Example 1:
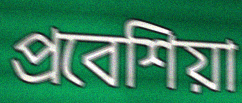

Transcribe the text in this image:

প্রবেশিয়া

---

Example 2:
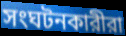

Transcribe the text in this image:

সংঘটনকারীরা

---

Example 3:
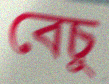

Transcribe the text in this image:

বেচু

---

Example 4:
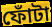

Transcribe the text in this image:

ফোঁটা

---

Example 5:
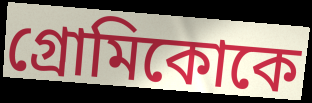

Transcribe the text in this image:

গ্রোমিকোকে